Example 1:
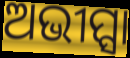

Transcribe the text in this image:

ଅଭୀପ୍ସା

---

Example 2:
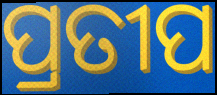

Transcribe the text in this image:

ପ୍ରତୀପ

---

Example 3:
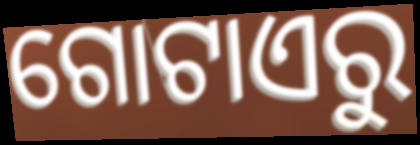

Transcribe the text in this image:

ଗୋଟାଏରୁ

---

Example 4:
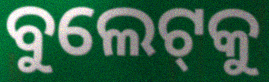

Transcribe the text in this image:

ବୁଲେଟ୍‌କୁ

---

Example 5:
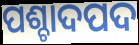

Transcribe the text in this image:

ପଶ୍ଚାଦପଦ